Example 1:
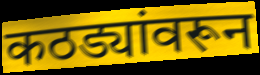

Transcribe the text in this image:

कठड्यांवरून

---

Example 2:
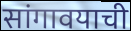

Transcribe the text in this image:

सांगावयाची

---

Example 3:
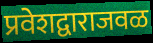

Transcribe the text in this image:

प्रवेशद्वाराजवळ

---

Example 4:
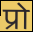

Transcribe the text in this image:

प्रो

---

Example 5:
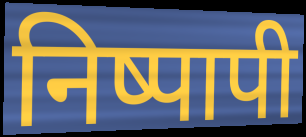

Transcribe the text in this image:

निष्पापी